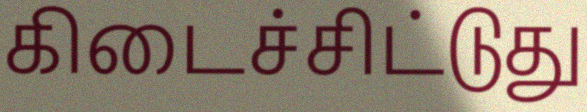
கிடைச்சிட்டுது